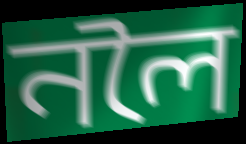
নলৈ